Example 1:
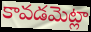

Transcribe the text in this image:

కావడమెట్లా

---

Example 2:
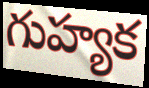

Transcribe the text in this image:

గుహ్యక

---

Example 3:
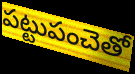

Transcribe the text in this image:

పట్టుపంచెతో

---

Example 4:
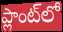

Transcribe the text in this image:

ప్లాంట్‌లో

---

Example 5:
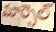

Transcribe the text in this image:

మార్సెల్